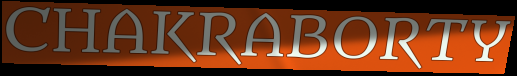
CHAKRABORTY